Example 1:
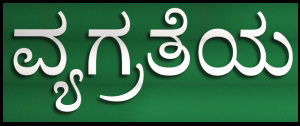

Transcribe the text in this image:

ವ್ಯಗ್ರತೆಯ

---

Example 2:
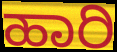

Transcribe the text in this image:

ಹಾರಿ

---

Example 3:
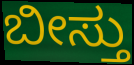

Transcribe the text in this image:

ಬೀಸ್ತು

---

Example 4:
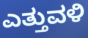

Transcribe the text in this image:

ಎತ್ತುವಳಿ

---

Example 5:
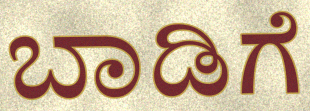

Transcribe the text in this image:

ಬಾಡಿಗೆ